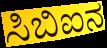
ಸಿಬಿಐನ